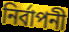
নির্বাপনী